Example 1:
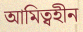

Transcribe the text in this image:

আমিত্বহীন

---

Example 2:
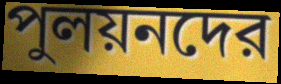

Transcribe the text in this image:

পুলয়নদের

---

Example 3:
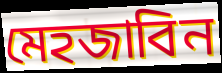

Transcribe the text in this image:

মেহজাবিন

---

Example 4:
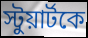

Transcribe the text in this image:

স্টুয়ার্টকে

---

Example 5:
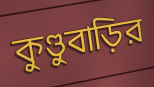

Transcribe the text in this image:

কুণ্ডুবাড়ির